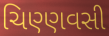
ચિણ્ણવસી